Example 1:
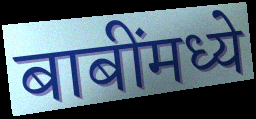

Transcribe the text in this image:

बाबींमध्ये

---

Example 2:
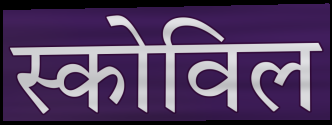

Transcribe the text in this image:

स्कोविल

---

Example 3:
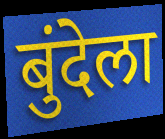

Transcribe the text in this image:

बुंदेला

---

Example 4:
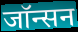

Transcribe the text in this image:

जॉन्सन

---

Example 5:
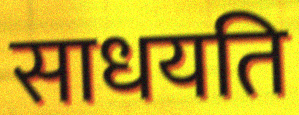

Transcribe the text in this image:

साधयति